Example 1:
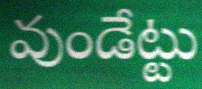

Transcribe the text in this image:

వుండేట్టు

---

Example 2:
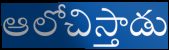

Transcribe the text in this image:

ఆలోచిస్తాడు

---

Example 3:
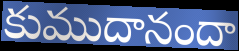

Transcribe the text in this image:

కుముదానందా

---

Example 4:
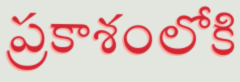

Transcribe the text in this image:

ప్రకాశంలోకి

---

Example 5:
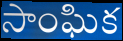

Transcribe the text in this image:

సాంఘిక